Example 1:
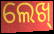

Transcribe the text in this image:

ଲେଖ୍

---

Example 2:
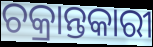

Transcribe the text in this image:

ଚକ୍ରାନ୍ତକାରୀ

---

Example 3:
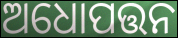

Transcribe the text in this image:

ଅଧୋପତ୍ତନ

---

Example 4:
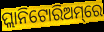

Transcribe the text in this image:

ପ୍ଲାନିଟୋରିଅମ୍‌ରେ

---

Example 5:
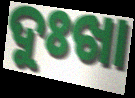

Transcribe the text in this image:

ଦୁଃଖା